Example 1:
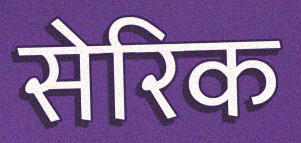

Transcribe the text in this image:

सेरिक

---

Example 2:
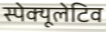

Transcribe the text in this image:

स्पेक्यूलेटिव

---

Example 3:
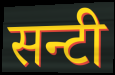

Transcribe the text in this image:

सन्टी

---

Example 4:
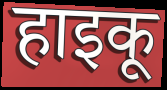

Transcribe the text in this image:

हाइकू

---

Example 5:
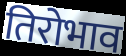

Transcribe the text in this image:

तिरोभाव